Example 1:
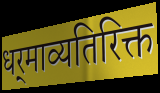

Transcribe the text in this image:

धर्माव्यतिरिक्त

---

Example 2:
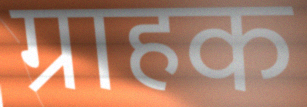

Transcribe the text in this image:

ग्राहक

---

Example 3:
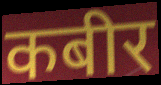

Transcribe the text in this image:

कबीर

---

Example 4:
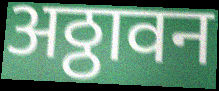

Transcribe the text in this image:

अठ्ठावन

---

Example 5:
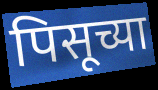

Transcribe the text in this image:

पिसूच्या